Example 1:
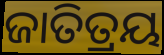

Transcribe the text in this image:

ଜାତିତ୍ରୟ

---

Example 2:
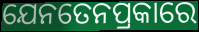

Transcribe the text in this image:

ଯେନତେନପ୍ରକାରେ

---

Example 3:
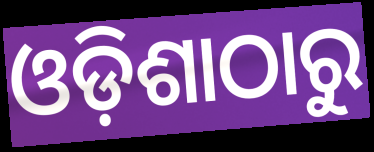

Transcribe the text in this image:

ଓଡ଼ିଶାଠାରୁ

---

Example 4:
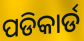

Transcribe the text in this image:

ପଡିକାର୍ଡ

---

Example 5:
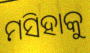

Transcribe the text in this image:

ମସିହାକୁ